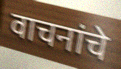
वाचनांचे